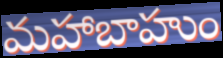
మహాబాహుం